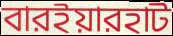
বারইয়ারহাট